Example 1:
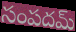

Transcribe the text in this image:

సంపదమ్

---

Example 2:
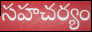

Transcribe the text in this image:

సహచర్యం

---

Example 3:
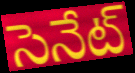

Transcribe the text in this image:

సెనేట్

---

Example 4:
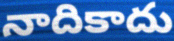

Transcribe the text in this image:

నాదికాదు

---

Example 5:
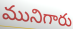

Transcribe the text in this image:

మునిగారు